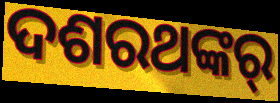
ଦଶରଥଙ୍କର୍